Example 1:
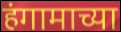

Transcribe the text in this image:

हंगामाच्या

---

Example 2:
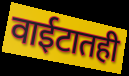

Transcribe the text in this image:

वाईटातही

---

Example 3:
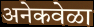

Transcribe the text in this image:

अनेकवेळा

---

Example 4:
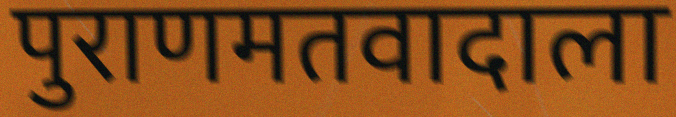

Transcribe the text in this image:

पुराणमतवादाला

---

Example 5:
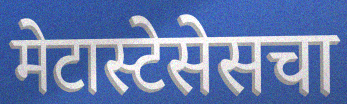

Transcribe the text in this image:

मेटास्टेसेसचा